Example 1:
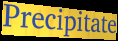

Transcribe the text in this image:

Precipitate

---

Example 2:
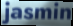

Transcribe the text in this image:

jasmin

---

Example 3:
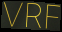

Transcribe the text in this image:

VRF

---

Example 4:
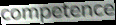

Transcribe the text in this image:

competence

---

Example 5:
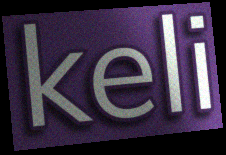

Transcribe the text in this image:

keli